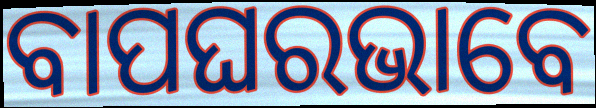
ବାପଘରଭାବେ